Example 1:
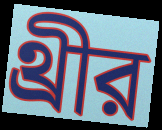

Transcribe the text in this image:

থ্রীর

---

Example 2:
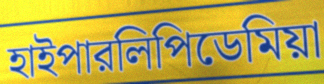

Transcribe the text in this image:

হাইপারলিপিডেমিয়া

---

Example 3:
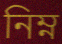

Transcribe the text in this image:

নিম্ন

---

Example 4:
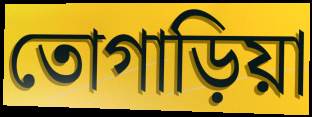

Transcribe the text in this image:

তোগাড়িয়া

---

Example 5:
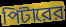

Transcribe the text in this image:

পিটারের